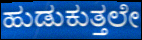
ಹುಡುಕುತ್ತಲೇ